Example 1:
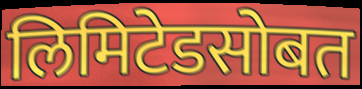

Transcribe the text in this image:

लिमिटेडसोबत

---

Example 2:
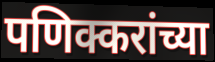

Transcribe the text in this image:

पणिक्करांच्या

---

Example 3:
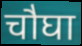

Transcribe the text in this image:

चौघा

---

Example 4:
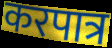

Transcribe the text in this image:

करपात्र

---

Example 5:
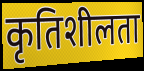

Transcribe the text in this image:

कृतिशीलता